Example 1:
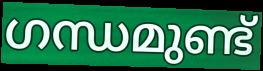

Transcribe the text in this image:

ഗന്ധമുണ്ട്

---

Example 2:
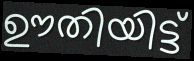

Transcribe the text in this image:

ഊതിയിട്ട്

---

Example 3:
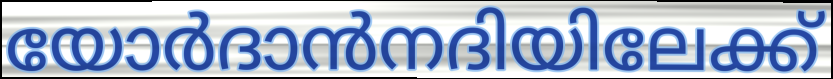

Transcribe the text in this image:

യോർദാൻനദിയിലേക്ക്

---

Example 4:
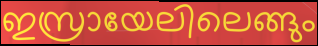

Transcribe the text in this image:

ഇസ്രായേലിലെങ്ങും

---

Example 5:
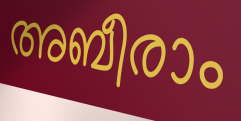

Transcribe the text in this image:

അബീരാം